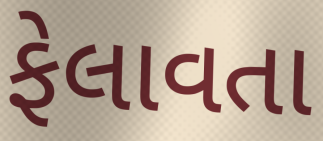
ફેલાવતા